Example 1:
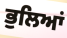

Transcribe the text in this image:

ਭੁਲਿਆਂ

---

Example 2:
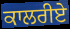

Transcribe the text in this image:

ਕਾਲਰੀਏ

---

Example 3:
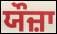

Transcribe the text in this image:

ਯੌਜ਼ਾ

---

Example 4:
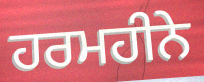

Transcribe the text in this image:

ਹਰਮਹੀਨੇ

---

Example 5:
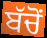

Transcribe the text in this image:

ਬੱਚੋਂ